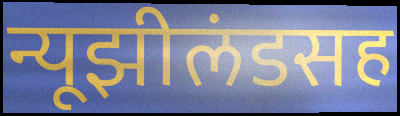
न्यूझीलंडसह